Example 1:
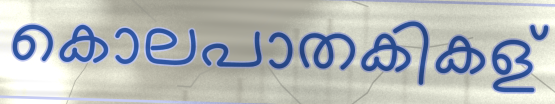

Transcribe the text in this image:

കൊലപാതകികള്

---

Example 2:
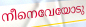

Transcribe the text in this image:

നീനെവേയോടു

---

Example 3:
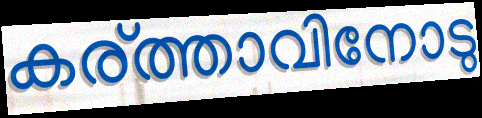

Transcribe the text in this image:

കര്ത്താവിനോടു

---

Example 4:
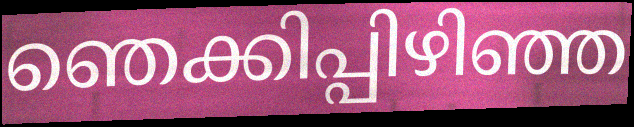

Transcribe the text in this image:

ഞെക്കിപ്പിഴിഞ്ഞ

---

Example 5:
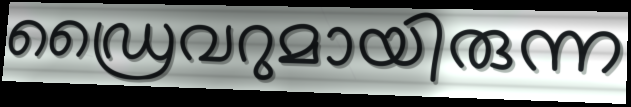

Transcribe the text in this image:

ഡ്രൈവറുമായിരുന്ന